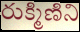
రుక్మిణిని